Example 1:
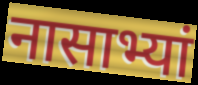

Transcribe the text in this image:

नासाभ्यां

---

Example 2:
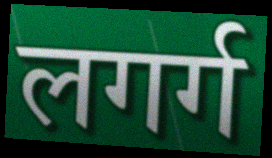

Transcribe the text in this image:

लगर्ग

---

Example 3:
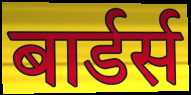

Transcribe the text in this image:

बार्डर्स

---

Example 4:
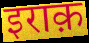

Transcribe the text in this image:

इराक़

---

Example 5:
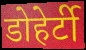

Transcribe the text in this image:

डोहेर्टी